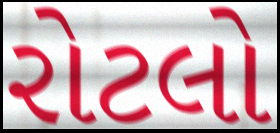
રોટલો